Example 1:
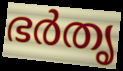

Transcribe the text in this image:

ഭർതൃ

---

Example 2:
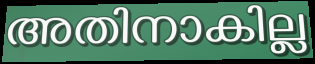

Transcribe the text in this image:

അതിനാകില്ല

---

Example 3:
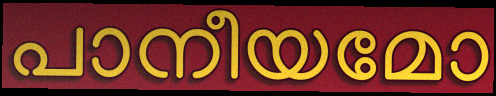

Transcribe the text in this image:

പാനീയമോ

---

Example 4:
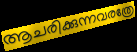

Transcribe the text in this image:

ആചരിക്കുന്നവരത്രേ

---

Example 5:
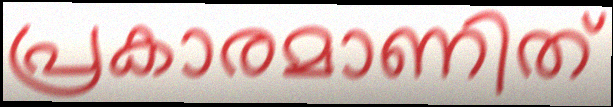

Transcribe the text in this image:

പ്രകാരമാണിത്